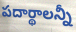
పదార్థాలన్నీ